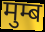
मुम्ब